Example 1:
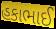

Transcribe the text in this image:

હકાભાઈ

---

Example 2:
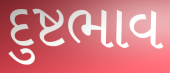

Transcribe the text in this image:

દુષ્ટભાવ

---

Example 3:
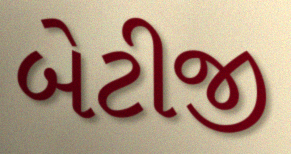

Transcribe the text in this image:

બેટીજી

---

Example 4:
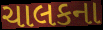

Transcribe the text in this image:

ચાલકના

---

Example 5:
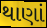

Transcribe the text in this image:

થાણાં